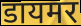
डायमर